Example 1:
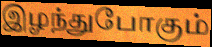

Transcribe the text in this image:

இழந்துபோகும்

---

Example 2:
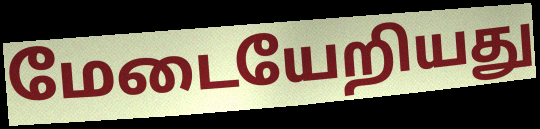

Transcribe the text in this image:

மேடையேறியது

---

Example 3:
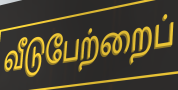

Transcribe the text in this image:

வீடுபேற்றைப்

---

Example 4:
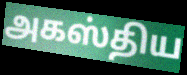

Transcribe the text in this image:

அகஸ்திய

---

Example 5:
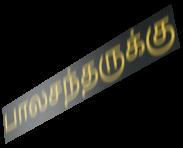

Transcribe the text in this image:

பாலசந்தருக்கு